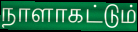
நாளாகட்டும்